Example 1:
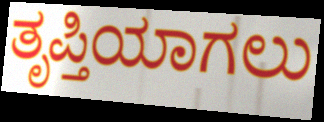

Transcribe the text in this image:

ತೃಪ್ತಿಯಾಗಲು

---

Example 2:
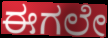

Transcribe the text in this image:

ಈಗಲೇ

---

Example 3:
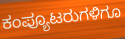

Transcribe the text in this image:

ಕಂಪ್ಯೂಟರುಗಳಿಗೂ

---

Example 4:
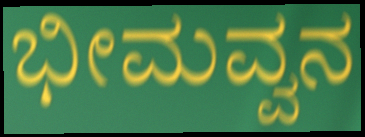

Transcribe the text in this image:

ಭೀಮವ್ವನ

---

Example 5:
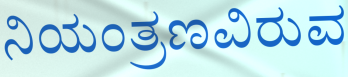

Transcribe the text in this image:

ನಿಯಂತ್ರಣವಿರುವ